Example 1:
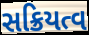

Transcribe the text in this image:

સક્રિયત્વ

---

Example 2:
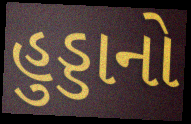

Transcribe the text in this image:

હુડ્ડાનો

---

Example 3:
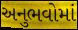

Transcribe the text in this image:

અનુભવોમાં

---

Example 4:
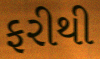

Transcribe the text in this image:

ફરીથી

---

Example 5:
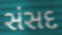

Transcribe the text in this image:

સંસદ